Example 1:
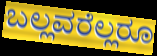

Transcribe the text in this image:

ಬಲ್ಲವರೆಲ್ಲರೂ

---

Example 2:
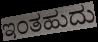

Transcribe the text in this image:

ಇಂತಹುದು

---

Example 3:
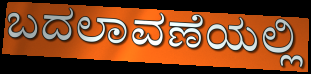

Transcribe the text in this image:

ಬದಲಾವಣೆಯಲ್ಲಿ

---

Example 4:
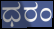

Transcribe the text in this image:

ಧರಂ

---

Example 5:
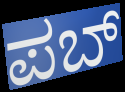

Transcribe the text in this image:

ಪಬ್